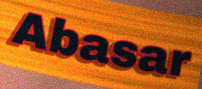
Abasar